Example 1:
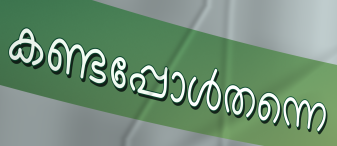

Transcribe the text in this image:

കണ്ടപ്പോൾതന്നെ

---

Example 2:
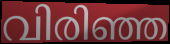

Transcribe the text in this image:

വിരിഞ്ഞ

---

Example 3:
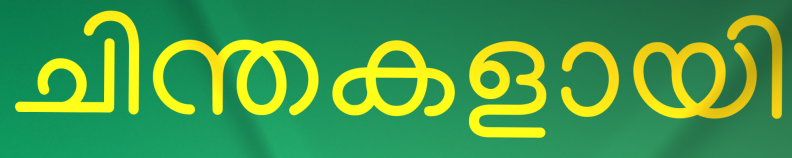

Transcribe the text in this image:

ചിന്തകളായി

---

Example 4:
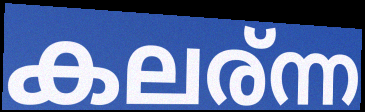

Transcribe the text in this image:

കലര്ന്ന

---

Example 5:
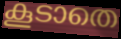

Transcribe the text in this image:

കൂടാതെ